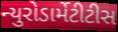
ન્યુરોડાર્મેટીટીસ